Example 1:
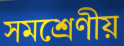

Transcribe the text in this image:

সমশ্রেণীয়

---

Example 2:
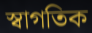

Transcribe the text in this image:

স্বাগতিক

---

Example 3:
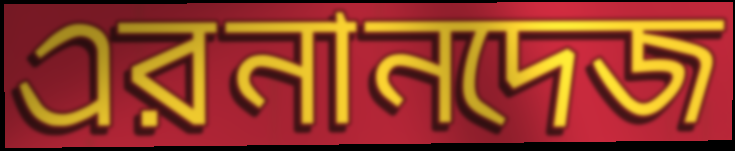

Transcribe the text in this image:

এরনানদেজ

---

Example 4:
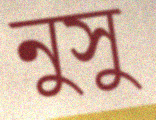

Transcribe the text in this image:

নুসু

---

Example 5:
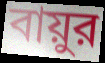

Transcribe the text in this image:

বায়ুর